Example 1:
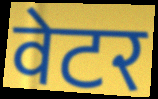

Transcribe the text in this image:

वेटर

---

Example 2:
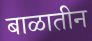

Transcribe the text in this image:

बाळातीन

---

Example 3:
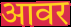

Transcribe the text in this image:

आवर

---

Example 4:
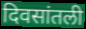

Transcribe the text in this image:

दिवसांतली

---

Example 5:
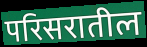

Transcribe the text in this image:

परिसरातील